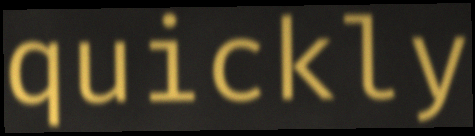
quickly